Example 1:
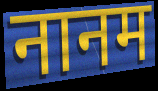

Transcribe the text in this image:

नानम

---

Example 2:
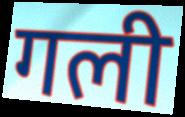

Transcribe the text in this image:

गली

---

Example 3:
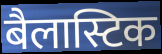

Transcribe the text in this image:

बैलास्टिक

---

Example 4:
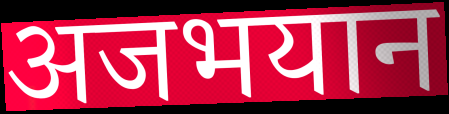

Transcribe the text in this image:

अजभयान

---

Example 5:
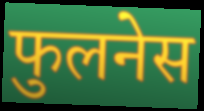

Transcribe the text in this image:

फुलनेस